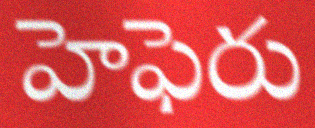
హెఫెరు